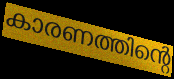
കാരണത്തിന്റെ